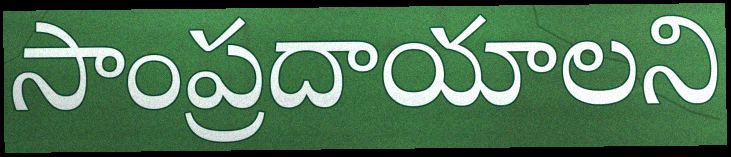
సాంప్రదాయాలని